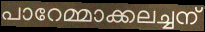
പാറേമ്മാക്കലച്ചന്